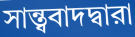
সান্ত্ববাদদ্বারা